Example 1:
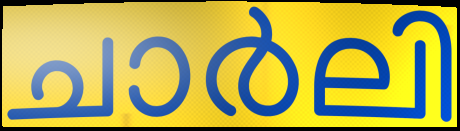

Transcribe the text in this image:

ചാർലി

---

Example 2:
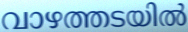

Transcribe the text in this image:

വാഴത്തടയിൽ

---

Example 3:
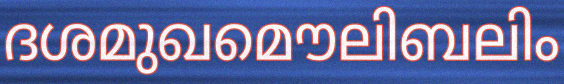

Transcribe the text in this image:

ദശമുഖമൌലിബലിം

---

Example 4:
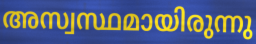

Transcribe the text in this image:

അസ്വസ്ഥമായിരുന്നു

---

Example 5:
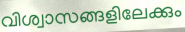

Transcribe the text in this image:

വിശ്വാസങ്ങളിലേക്കും